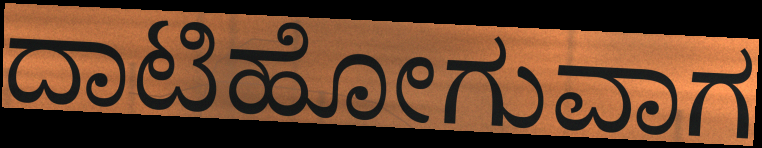
ದಾಟಿಹೋಗುವಾಗ